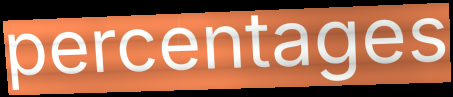
percentages